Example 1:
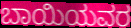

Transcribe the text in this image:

ಬಾಯಿಯವರ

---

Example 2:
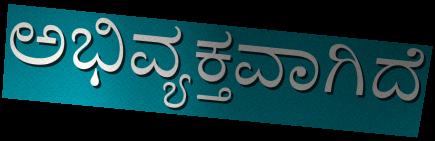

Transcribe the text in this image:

ಅಭಿವ್ಯಕ್ತವಾಗಿದೆ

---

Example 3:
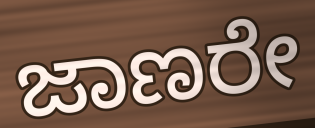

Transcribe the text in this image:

ಜಾಣರೇ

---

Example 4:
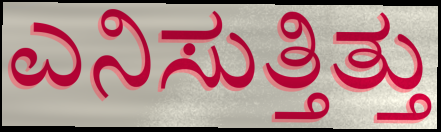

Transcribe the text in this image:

ಎನಿಸುತ್ತಿತ್ತು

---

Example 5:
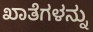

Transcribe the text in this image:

ಖಾತೆಗಳನ್ನು